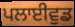
ਪਲਾਈਵੁਡ